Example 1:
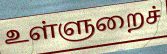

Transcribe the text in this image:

உள்ளுறைச்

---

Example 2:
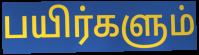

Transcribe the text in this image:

பயிர்களும்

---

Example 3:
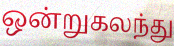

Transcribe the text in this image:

ஒன்றுகலந்து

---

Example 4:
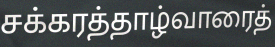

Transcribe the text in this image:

சக்கரத்தாழ்வாரைத்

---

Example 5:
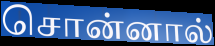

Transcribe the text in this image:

சொன்னால்